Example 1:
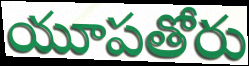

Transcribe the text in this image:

యూపతోరు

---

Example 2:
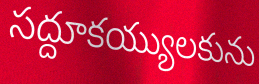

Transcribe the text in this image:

సద్దూకయ్యులకును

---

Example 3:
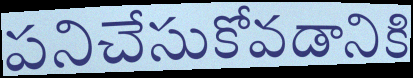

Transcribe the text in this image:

పనిచేసుకోవడానికి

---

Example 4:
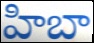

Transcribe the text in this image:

హిబా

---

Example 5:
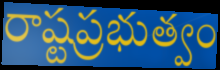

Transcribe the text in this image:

రాష్టప్రభుత్వం